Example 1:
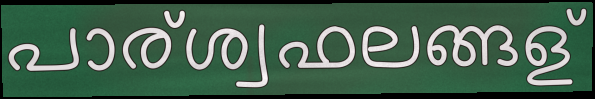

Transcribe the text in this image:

പാര്ശ്വഫലങ്ങള്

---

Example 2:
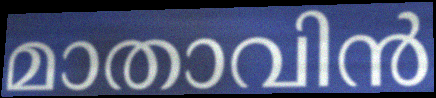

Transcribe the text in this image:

മാതാവിൻ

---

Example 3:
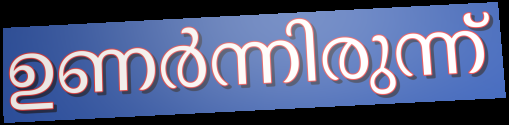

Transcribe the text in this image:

ഉണർന്നിരുന്ന്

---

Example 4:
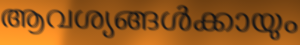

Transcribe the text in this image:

ആവശ്യങ്ങൾക്കായും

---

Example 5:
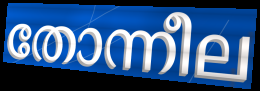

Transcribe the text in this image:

തോന്നീല